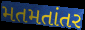
મતમતાંતર